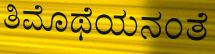
ತಿಮೊಥೆಯನಂತೆ